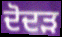
ਦੋਦੜ